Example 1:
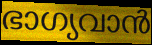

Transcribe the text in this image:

ഭാഗ്യവാൻ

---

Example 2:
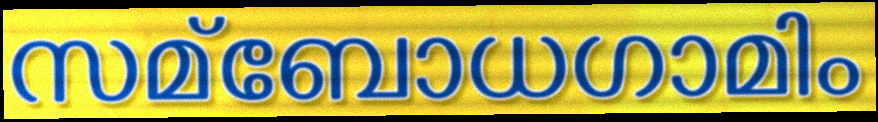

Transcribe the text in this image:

സമ്ബോധഗാമിം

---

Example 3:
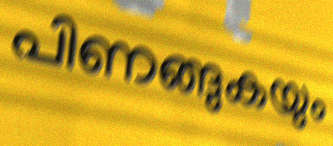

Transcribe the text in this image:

പിണങ്ങുകയും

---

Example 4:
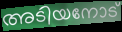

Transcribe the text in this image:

അടിയനോട്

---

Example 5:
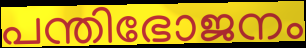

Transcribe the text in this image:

പന്തിഭോജനം